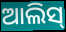
ଆଲିସ୍